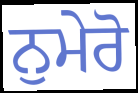
ਨੁਮੇਰੋ